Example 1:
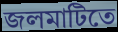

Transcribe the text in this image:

জলমাটিতে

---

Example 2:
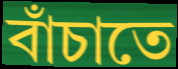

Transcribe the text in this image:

বাঁচাতে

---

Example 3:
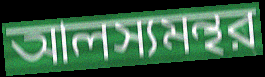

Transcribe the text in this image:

আলস্যমন্থর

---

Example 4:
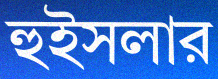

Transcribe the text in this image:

হুইসলার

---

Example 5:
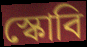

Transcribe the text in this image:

স্কোবি